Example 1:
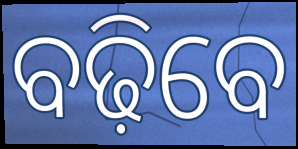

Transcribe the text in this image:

ବଢ଼ିବେ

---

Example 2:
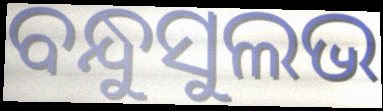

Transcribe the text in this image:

ବନ୍ଧୁସୁଲଭ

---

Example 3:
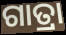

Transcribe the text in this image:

ଗାତ୍ରା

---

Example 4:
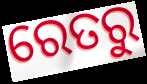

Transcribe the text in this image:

ରେତରୁ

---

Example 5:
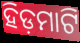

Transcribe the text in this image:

ହିଡ଼ମାଟି